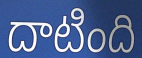
దాటింది